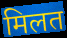
मिलत